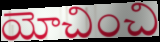
యోచించి